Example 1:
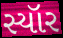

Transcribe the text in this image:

સ્યૉર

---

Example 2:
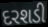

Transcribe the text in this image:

દરશડી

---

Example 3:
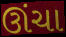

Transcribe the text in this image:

ઊંચા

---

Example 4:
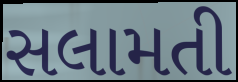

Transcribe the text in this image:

સલામતી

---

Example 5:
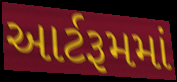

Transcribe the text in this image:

આર્ટરૂમમાં